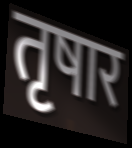
तृषार